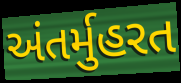
અંતર્મુહરત